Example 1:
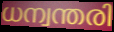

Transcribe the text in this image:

ധന്വന്തരി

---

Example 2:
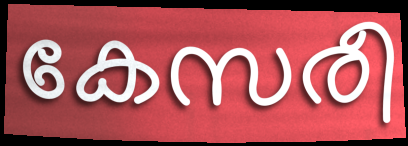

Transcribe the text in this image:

കേസരീ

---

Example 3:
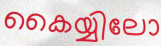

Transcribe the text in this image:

കൈയ്യിലോ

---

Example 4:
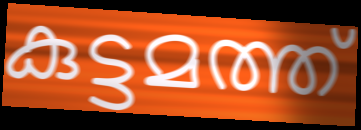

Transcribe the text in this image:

കുട്ടമത്ത്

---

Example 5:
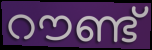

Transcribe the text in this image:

റൗണ്ട്